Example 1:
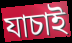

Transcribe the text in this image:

যাচাই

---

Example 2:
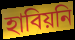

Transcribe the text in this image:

হাবিয়নি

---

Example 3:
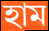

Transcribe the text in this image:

হাম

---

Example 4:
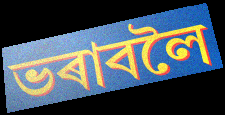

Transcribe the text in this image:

ভৰাবলৈ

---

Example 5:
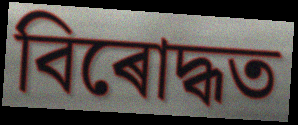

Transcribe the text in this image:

বিৰোদ্ধত